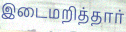
இடைமறித்தார்